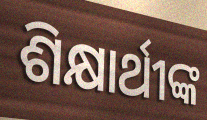
ଶିକ୍ଷାର୍ଥୀଙ୍କ